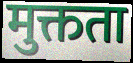
मुक्तता